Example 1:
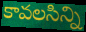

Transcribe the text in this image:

కావలసిన్ని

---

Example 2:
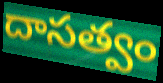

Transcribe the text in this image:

దాసత్వం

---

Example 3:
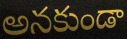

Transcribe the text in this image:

అనకుండా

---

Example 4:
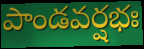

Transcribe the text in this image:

పాండవర్షభః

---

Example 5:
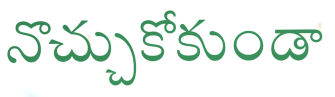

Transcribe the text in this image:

నొచ్చుకోకుండా